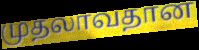
முதலாவதான